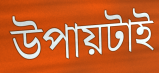
উপায়টাই